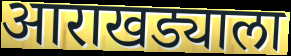
आराखड्याला